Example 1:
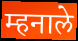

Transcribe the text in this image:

म्हनाले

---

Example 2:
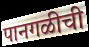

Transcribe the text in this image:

पानगळीची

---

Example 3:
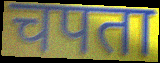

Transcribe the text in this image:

चपता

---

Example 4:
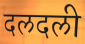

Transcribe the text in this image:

दलदली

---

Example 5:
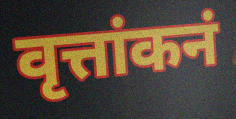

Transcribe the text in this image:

वृत्तांकनं